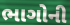
ભાગોની